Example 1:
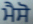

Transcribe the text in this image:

ਮੈਸੋ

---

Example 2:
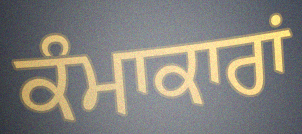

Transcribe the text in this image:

ਕੰਮਾਕਾਰਾਂ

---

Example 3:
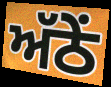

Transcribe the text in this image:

ਅੱਠੇਂ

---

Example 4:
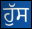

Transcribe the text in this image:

ਹੁੱਸ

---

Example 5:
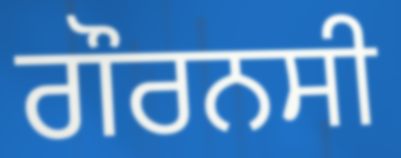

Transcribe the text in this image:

ਗੌਰਨਸੀ